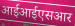
आईआईएसआर